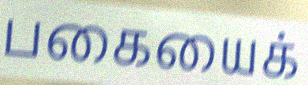
பகையைக்